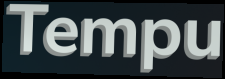
Tempu